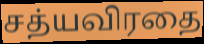
சத்யவிரதை